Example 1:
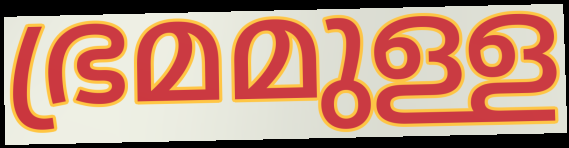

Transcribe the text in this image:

ഭ്രമമുള്ള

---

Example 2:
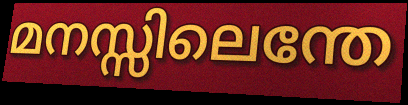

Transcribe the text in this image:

മനസ്സിലെന്തേ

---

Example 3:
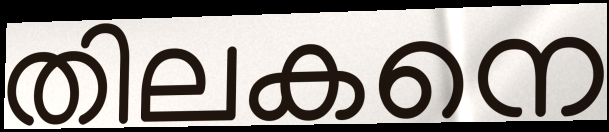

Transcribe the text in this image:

തിലകനെ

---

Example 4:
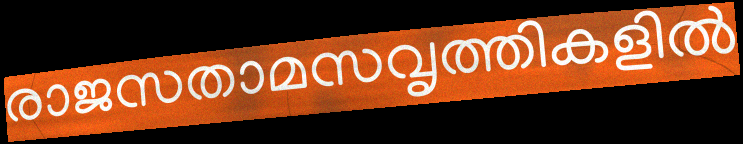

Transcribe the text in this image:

രാജസതാമസവൃത്തികളിൽ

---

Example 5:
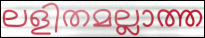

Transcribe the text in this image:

ലളിതമല്ലാത്ത